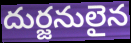
దుర్జనులైన